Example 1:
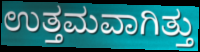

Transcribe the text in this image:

ಉತ್ತಮವಾಗಿತ್ತು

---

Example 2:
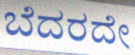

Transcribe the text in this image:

ಬೆದರದೇ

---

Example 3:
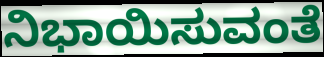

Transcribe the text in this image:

ನಿಭಾಯಿಸುವಂತೆ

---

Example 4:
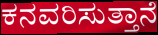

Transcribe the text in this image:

ಕನವರಿಸುತ್ತಾನೆ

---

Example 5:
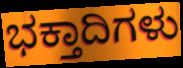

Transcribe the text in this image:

ಭಕ್ತಾದಿಗಳು